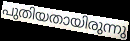
പുതിയതായിരുന്നു